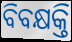
ବିବକ୍ଷକ୍ତି